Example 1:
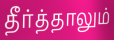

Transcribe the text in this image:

தீர்த்தாலும்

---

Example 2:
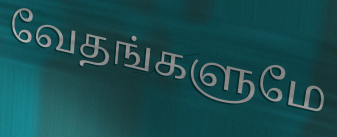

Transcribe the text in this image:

வேதங்களுமே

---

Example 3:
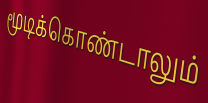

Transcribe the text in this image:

மூடிக்கொண்டாலும்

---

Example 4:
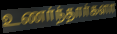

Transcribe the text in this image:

உணர்ந்தார்களா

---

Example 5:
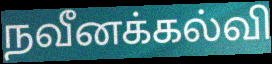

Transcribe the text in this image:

நவீனக்கல்வி